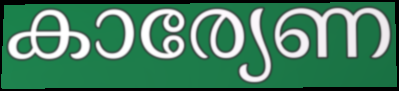
കാര്യേണ